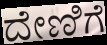
ದೇಣಿಗೆ